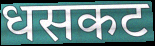
धसकट